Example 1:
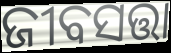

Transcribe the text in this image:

ଜୀବସତ୍ତା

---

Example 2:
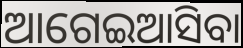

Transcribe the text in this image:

ଆଗେଇଆସିବା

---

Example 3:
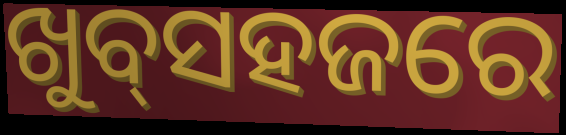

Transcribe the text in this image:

ଖୁବ୍‌ସହଜରେ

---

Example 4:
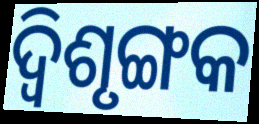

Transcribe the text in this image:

ଦ୍ଵିଶୃଙ୍ଗକ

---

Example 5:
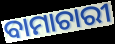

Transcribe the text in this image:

ବାମାଚାରୀ